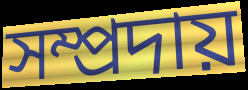
সম্প্ৰদায়